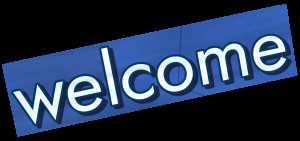
welcome